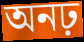
অনঢ়